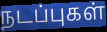
நடப்புகள்